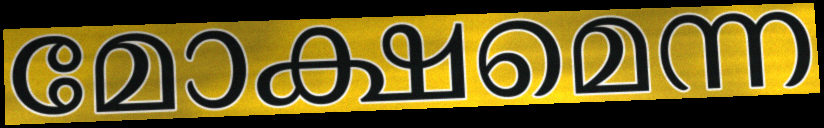
മോക്ഷമെന്ന